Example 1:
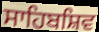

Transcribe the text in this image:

ਸਾਹਿਬਸ਼ਿਵ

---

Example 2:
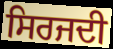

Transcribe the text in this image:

ਸਿਰਜਦੀ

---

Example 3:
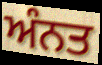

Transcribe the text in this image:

ਅੰਨਤ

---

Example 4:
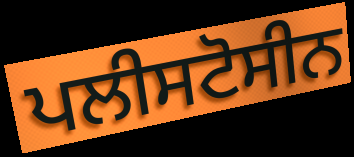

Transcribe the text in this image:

ਪਲੀਸਟੋਸੀਨ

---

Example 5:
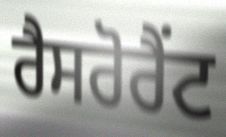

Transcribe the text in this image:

ਰੈਸਰੋਰੈਂਟ